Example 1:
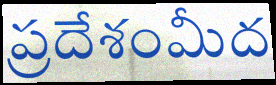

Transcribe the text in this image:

ప్రదేశంమీద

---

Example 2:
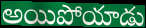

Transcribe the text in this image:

అయిపోయాడు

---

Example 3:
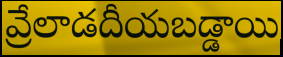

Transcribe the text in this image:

వ్రేలాడదీయబడ్డాయి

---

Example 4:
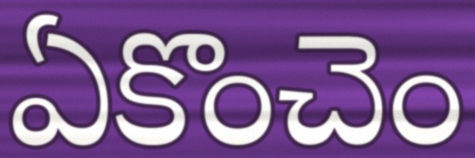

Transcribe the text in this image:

ఏకొంచెం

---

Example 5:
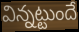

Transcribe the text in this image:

విన్నట్టుందే